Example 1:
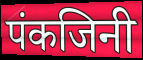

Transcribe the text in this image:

पंकजिनी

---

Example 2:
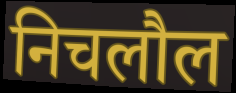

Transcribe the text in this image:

निचलौल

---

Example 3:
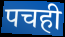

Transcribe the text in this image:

पचही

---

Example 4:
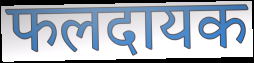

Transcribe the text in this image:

फलदायक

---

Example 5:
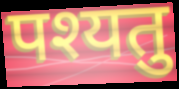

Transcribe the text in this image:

पश्यतु